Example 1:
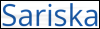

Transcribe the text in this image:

Sariska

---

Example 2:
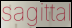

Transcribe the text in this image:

sagittal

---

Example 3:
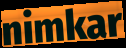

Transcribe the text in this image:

nimkar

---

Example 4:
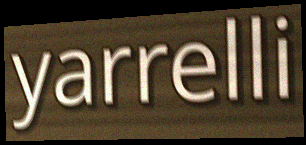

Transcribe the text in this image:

yarrelli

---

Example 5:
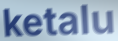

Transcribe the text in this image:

ketalu